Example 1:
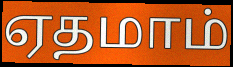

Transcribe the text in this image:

ஏதமாம்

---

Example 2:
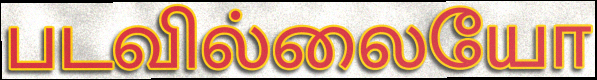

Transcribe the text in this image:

படவில்லையோ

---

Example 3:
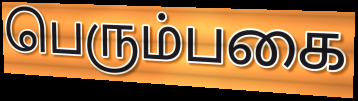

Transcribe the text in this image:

பெரும்பகை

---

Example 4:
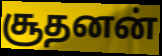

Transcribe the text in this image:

சூதனன்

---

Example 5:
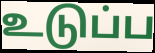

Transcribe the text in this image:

உடுப்ப